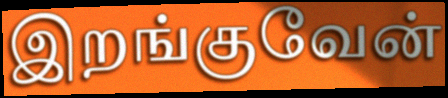
இறங்குவேன்